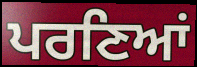
ਪਰਣਿਆਂ